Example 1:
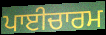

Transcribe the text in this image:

ਪਾਈਚਾਰਮ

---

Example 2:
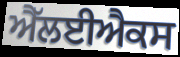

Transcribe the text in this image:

ਐੱਲਈਐਕਸ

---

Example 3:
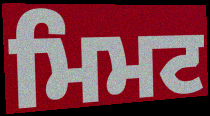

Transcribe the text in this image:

ਮਿਮਟ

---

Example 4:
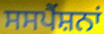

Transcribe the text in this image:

ਸਸਪੈਂਸ਼ਨਾਂ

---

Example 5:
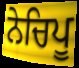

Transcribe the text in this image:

ਨੇਚਿਪੂ